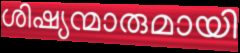
ശിഷ്യന്മാരുമായി